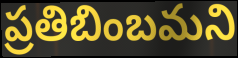
ప్రతిబింబమని